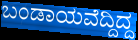
ಬಂಡಾಯವೆದ್ದಿದ್ದ